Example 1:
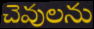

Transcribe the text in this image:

చెవులను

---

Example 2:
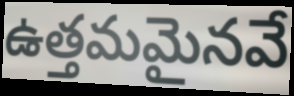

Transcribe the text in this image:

ఉత్తమమైనవే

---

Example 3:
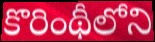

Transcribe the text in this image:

కొరింథీలోని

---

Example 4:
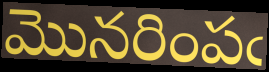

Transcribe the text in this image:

మొనరింపఁ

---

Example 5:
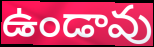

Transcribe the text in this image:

ఉండావు